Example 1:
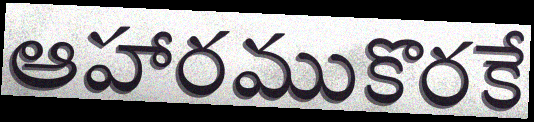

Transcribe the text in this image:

ఆహారముకొరకే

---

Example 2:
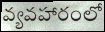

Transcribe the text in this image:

వ్యవహారంలో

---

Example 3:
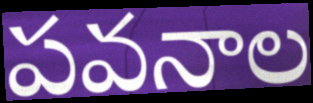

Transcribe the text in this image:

పవనాల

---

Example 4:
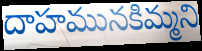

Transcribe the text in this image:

దాహమునకిమ్మని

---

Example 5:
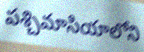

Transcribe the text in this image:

పశ్చిమాసియాలోని